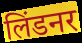
लिंडनर